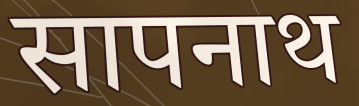
सापनाथ